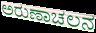
ಅರುಣಾಚಲನ